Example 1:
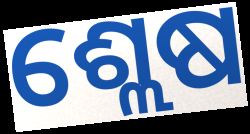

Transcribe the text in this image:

ଶ୍ଲେଷ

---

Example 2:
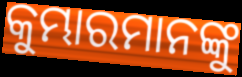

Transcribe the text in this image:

କୁମ୍ଭାରମାନଙ୍କୁ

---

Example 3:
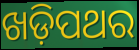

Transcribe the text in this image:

ଖଡ଼ିପଥର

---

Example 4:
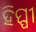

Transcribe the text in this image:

ହିପ୍ପୀ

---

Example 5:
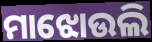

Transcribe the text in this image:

ମାଝୋଉଲି